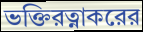
ভক্তিরত্নাকরের